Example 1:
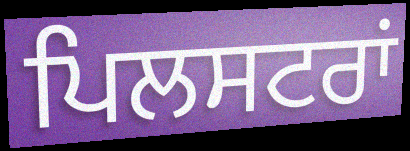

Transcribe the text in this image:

ਪਿਲਸਟਰਾਂ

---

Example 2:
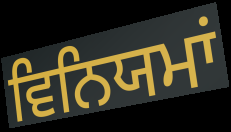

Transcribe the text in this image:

ਵਿਨਿਯਮਾਂ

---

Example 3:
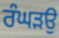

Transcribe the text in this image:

ਰੰਘੜਉ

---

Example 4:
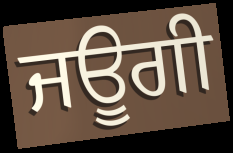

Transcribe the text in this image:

ਜਊਗੀ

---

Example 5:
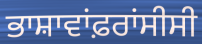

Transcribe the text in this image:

ਭਾਸ਼ਾਵਾਂਫ਼ਰਾਂਸੀਸੀ